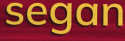
segan